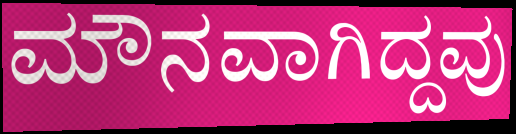
ಮೌನವಾಗಿದ್ದವು